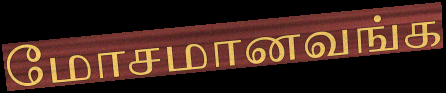
மோசமானவங்க